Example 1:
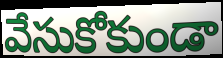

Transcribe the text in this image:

వేసుకోకుండా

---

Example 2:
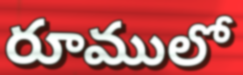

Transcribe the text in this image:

రూములో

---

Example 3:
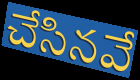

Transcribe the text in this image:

చేసినవే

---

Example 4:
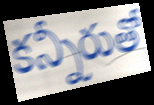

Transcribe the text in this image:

కన్నీరుతో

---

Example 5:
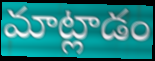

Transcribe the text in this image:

మాట్లాడం